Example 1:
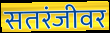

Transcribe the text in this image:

सतरंजीवर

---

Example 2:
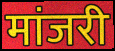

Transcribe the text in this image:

मांजरी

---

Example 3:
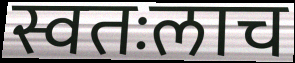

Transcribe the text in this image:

स्वतःलाच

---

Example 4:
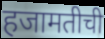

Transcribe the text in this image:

हजामतीची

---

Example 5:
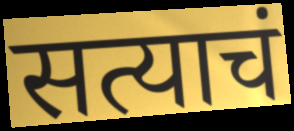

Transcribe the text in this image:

सत्याचं